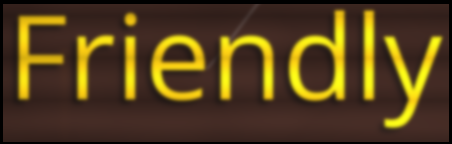
Friendly